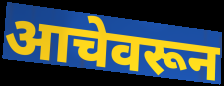
आचेवरून